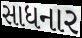
સાધનાર